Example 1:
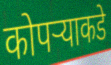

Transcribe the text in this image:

कोपऱ्याकडे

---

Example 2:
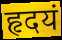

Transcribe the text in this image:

हृदयं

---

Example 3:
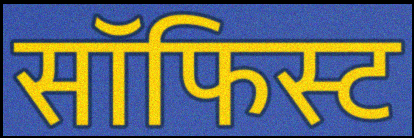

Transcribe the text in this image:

सॉफिस्ट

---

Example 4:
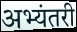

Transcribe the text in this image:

अभ्यंतरी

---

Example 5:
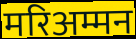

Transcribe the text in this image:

मरिअम्मन